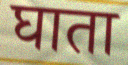
घाता